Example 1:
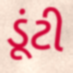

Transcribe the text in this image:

ડૂંટી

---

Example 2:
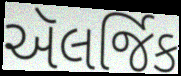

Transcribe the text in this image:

ઍલર્જિક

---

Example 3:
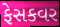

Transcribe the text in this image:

ફેસકવર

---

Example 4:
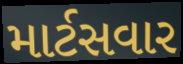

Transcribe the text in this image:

માર્ટસવાર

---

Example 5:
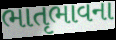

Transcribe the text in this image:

ભાતૃભાવના